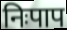
निःपाप